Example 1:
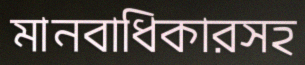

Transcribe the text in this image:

মানবাধিকারসহ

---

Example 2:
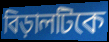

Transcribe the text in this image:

বিড়ালটিকে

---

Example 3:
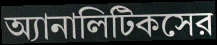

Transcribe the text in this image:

অ্যানালিটিকসের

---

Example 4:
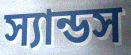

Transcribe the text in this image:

স্যান্ডস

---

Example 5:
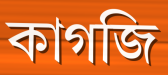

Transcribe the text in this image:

কাগজি